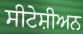
ਸੀਟੇਸ਼ੀਅਨ